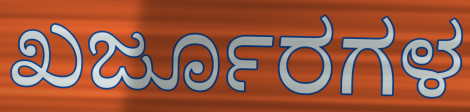
ಖರ್ಜೂರಗಳ